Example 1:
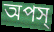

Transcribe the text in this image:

অপস্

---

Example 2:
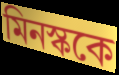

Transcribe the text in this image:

মিনস্ককে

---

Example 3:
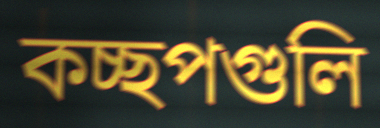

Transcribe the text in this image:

কচ্ছপগুলি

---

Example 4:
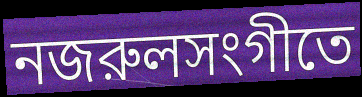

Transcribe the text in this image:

নজরুলসংগীতে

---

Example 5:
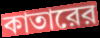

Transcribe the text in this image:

কাতারের